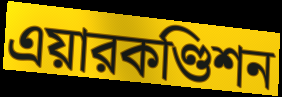
এয়ারকণ্ডিশন